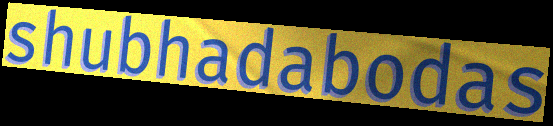
shubhadabodas